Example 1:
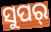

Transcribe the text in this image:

ସୁପର୍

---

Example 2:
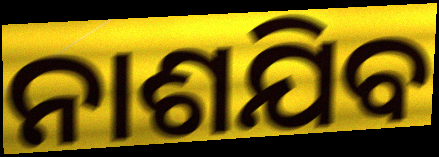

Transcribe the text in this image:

ନାଶଯିବ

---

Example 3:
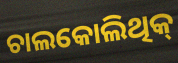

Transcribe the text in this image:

ଚାଲକୋଲିଥିକ୍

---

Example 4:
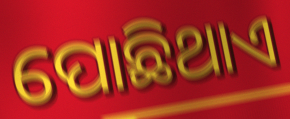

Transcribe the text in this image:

ପୋଛିଥାଏ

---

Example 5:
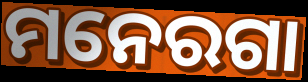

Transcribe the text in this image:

ମନେରଗା